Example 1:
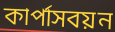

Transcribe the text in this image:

কার্পাসবয়ন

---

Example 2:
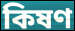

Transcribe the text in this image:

কিষণ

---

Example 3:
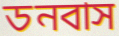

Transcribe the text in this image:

ডনবাস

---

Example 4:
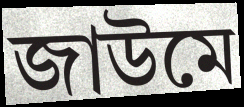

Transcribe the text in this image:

জাউমে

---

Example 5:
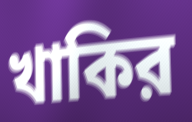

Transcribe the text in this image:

খাকির